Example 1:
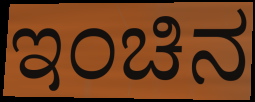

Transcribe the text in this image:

ಇಂಚಿನ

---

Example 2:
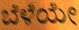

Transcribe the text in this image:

ಬೆಳೆಯೇ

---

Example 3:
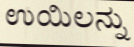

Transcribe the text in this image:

ಉಯಿಲನ್ನು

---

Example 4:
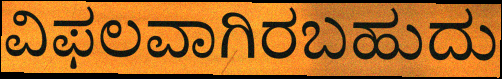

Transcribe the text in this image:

ವಿಫಲವಾಗಿರಬಹುದು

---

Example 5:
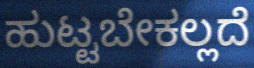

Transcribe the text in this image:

ಹುಟ್ಟಬೇಕಲ್ಲದೆ